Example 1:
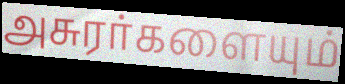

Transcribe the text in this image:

அசுரர்களையும்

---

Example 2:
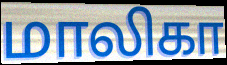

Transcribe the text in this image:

மாலிகா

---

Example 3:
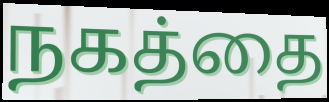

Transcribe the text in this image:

நகத்தை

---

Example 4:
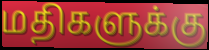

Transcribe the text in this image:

மதிகளுக்கு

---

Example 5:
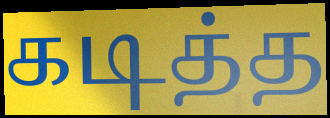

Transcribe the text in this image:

கடித்த